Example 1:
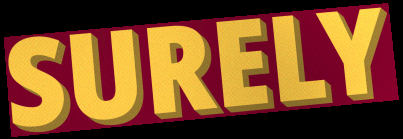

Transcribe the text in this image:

SURELY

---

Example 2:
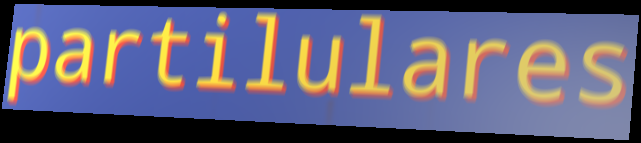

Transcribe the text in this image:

partilulares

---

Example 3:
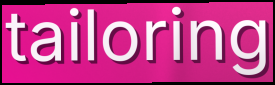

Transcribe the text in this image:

tailoring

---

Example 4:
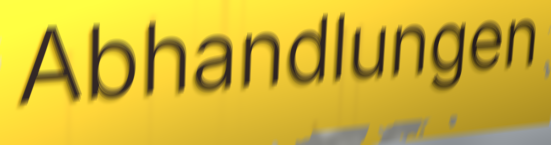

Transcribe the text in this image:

Abhandlungen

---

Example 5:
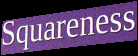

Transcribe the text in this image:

Squareness